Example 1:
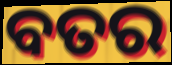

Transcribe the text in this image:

ବତର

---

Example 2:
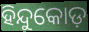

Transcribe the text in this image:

ହିନ୍ଦୁକୋଡ଼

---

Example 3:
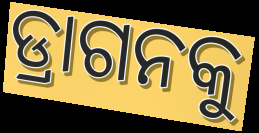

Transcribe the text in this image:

ଡ୍ରାଗନକୁ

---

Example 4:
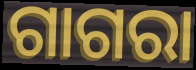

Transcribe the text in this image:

ଗାଗରା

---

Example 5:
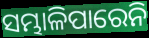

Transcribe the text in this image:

ସମ୍ଭାଳିପାରେନି